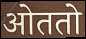
ओततो